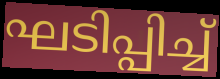
ഘടിപ്പിച്ച്